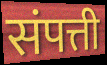
संपत्ती